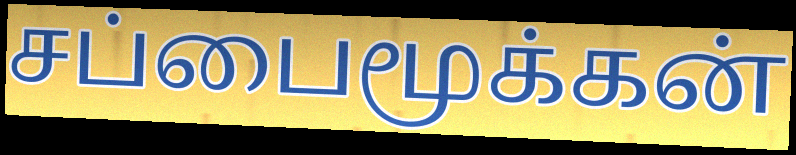
சப்பைமூக்கன்